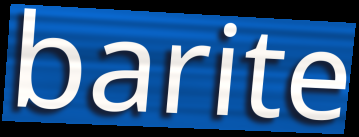
barite